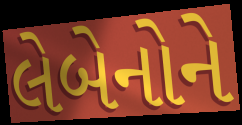
લેબેનોને